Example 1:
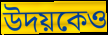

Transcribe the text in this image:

উদয়কেও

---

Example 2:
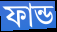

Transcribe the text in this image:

ফান্ড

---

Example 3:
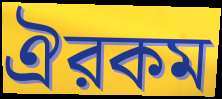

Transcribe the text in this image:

ঐরকম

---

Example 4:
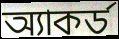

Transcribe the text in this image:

অ্যাকর্ড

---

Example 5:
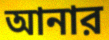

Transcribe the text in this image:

আনার